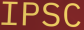
IPSC